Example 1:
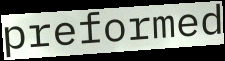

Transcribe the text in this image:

preformed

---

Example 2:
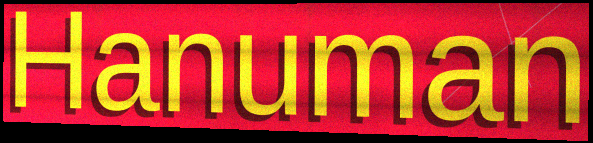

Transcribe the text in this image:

Hanuman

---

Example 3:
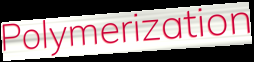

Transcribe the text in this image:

Polymerization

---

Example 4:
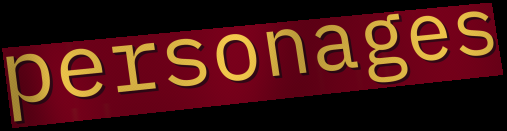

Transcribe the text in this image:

personages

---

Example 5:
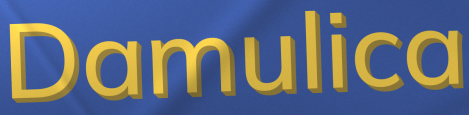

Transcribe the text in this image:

Damulica